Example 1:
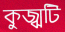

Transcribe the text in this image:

কুজ্ঝটি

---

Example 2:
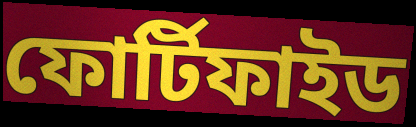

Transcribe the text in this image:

ফোর্টিফাইড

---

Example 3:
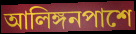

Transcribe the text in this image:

আলিঙ্গনপাশে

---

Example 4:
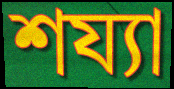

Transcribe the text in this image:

শয্যা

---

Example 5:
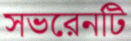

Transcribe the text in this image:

সভরেনটি